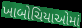
ખાબોચિયાઓમાં